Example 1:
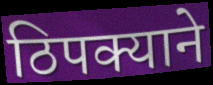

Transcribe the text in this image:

ठिपक्याने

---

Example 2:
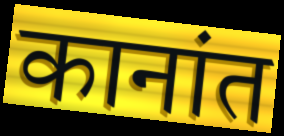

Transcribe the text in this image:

कानांत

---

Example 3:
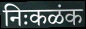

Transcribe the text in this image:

निःकळंक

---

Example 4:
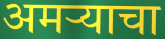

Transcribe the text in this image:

अमऱ्याचा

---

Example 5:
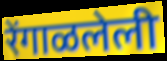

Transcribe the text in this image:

रेंगाळलेली